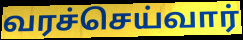
வரச்செய்வார்